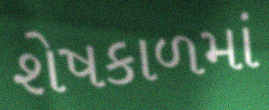
શેષકાળમાં